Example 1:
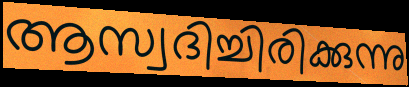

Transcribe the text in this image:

ആസ്വദിച്ചിരിക്കുന്നു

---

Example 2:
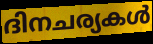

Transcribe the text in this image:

ദിനചര്യകൾ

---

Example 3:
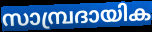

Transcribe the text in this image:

സാമ്പ്രദായിക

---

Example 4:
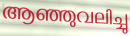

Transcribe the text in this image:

ആഞ്ഞുവലിച്ചു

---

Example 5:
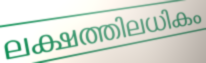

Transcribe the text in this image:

ലക്ഷത്തിലധികം